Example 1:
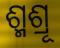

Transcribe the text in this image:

ଶ୍ମଶ୍ରୂ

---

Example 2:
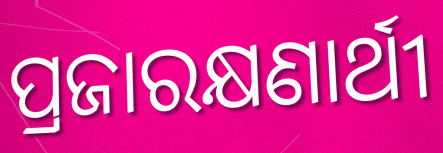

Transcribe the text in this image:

ପ୍ରଜାରକ୍ଷଣାର୍ଥୀ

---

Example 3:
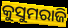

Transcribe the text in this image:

କୁସୁମରାଜି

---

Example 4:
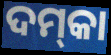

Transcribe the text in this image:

ଦମ୍‌କା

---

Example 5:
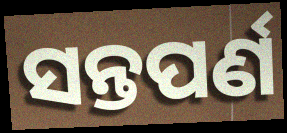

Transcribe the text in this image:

ସନ୍ତପର୍ଣ